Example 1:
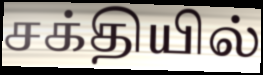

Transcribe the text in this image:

சக்தியில்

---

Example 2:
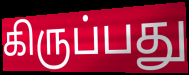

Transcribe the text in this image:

கிருப்பது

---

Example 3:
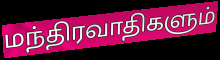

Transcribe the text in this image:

மந்திரவாதிகளும்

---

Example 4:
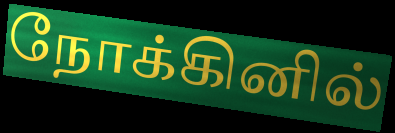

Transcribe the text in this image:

நோக்கினில்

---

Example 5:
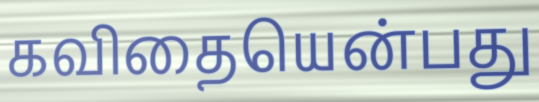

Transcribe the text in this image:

கவிதையென்பது